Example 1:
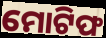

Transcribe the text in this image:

ମୋଟିଫ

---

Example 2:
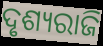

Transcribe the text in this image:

ଦୃଶ୍ୟରାଜି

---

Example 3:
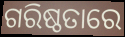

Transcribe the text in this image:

ଗରିଷ୍ଠତାରେ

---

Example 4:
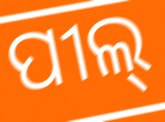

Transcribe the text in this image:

ପୀଲ୍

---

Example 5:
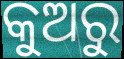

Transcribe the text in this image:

କୁଅରୁ